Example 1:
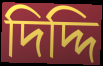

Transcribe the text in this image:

দিদ্দি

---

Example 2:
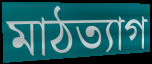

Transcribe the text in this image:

মাঠত্যাগ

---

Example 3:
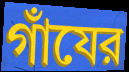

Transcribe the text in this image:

গাঁযের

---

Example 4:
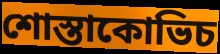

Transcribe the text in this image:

শোস্তাকোভিচ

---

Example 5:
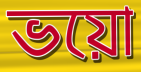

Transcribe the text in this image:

ভয়ো